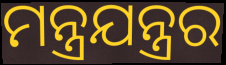
ମନ୍ତ୍ରଯନ୍ତ୍ରର